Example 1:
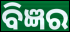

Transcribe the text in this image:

ବିଜ୍ଞର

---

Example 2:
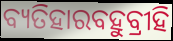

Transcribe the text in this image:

ବ୍ୟତିହାରବହୁବ୍ରୀହି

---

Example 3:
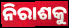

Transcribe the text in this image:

ନିରାଶକୁ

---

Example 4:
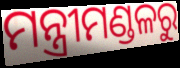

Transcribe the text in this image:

ମନ୍ତ୍ରୀମଣ୍ଡଳରୁ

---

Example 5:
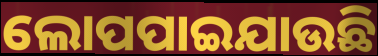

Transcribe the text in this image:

ଲୋପପାଇଯାଉଛି